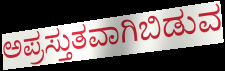
ಅಪ್ರಸ್ತುತವಾಗಿಬಿಡುವ